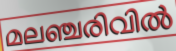
മലഞ്ചരിവിൽ